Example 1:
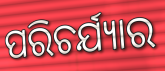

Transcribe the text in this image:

ପରିଚର୍ଯ୍ୟାର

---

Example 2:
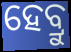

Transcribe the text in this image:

ହେବ୍ରୁ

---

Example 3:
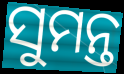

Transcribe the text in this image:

ସୁମନ୍ତ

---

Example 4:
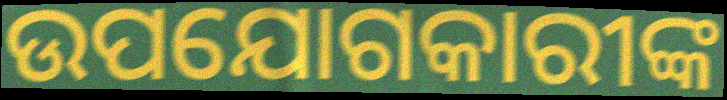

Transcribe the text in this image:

ଉପଯୋଗକାରୀଙ୍କ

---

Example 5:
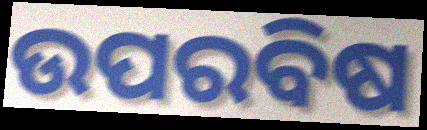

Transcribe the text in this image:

ଉପରବିଷ